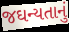
જઘન્યતાનું